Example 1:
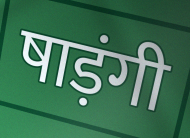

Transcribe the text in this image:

षाड़ंगी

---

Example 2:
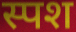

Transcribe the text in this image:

स्पश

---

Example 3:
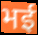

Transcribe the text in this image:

भई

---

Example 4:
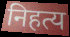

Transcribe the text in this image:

निहत्य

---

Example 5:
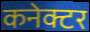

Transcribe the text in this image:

कनेक्टर